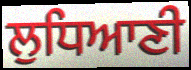
ਲੁਧਿਆਣੀ